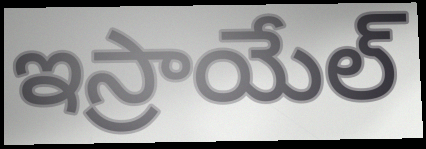
ఇస్రాయేల్